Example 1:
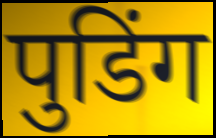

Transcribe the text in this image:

पुडिंग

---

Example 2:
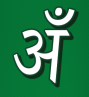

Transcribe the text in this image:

अँ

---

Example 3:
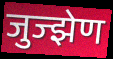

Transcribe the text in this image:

जुज्झेण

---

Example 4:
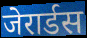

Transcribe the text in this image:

जेरार्डस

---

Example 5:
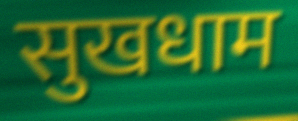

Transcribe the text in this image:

सुखधाम